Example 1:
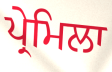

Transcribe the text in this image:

ਪ੍ਰੇਮਿਲਾ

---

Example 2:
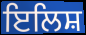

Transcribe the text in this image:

ਇਲਿਸ਼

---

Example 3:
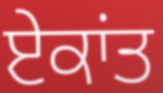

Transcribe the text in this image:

ਏਕਾਂਤ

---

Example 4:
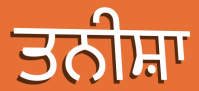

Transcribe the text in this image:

ਤਨੀਸ਼ਾ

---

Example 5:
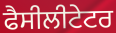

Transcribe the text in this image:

ਫੈਸੀਲੀਟੇਟਰ